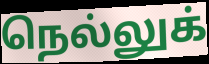
நெல்லுக்